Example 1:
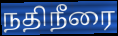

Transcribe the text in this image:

நதிநீரை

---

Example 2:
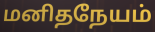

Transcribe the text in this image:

மனிதநேயம்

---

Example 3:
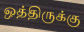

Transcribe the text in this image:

ஒத்திருக்கு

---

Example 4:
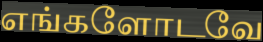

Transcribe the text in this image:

எங்களோடவே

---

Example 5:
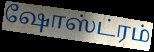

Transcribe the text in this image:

ஷோஸ்ட்ரம்